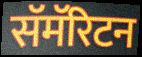
सॅमॅरिटन